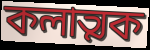
কলাত্মক